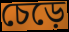
চেড়ে